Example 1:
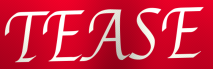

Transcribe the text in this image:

TEASE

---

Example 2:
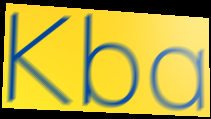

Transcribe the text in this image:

Kba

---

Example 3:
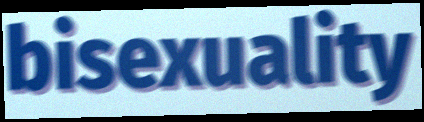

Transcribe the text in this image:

bisexuality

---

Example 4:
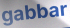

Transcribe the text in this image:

gabbar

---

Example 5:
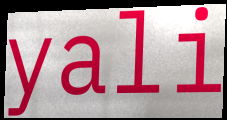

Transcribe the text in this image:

yali